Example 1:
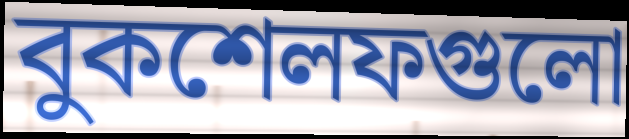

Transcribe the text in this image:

বুকশেলফগুলো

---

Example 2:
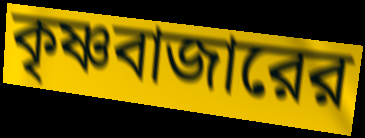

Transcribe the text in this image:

কৃষ্ণবাজারের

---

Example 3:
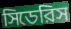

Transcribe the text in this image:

সিডেরিস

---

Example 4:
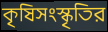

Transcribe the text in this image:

কৃষিসংস্কৃতির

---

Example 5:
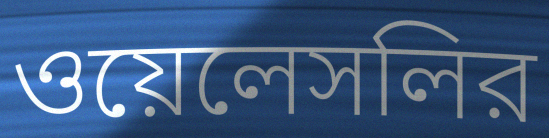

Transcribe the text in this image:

ওয়েলেসলির